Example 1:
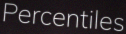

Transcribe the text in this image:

Percentiles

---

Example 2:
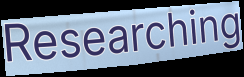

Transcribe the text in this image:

Researching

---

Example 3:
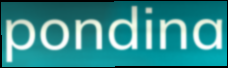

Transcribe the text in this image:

pondina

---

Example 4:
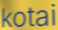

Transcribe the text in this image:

kotai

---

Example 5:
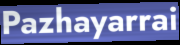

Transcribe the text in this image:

Pazhayarrai